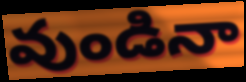
వుండినా